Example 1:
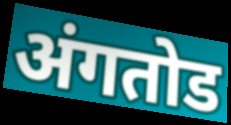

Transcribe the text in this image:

अंगतोड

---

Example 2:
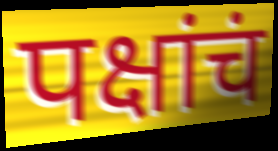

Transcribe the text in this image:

पक्षांचं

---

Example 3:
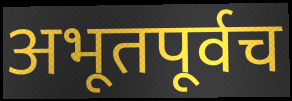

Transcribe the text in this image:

अभूतपूर्वच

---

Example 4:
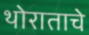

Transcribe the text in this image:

थोराताचे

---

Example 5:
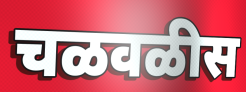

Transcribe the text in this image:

चळवळीस